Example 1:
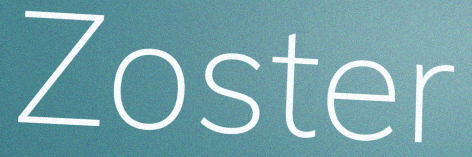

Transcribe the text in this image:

Zoster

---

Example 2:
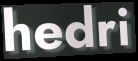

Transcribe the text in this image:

hedri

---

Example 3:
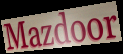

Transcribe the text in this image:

Mazdoor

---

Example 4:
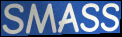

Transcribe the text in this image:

SMASS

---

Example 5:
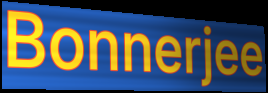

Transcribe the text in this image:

Bonnerjee